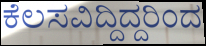
ಕೆಲಸವಿದ್ದಿದ್ದರಿಂದ